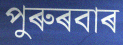
পুৰুৰবাৰ